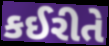
કઈરીતે